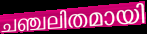
ചഞ്ചലിതമായി